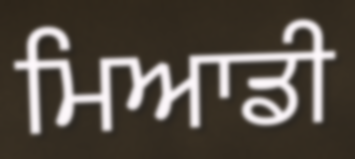
ਮਿਆਡੀ